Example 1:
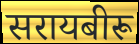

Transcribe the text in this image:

सरायबीरू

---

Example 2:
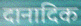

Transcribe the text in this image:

दानादिक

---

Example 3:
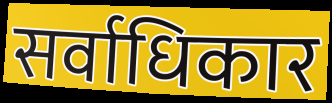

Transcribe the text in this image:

सर्वाधिकार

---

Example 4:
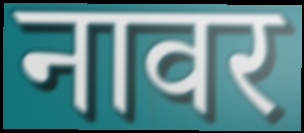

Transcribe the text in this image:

नावर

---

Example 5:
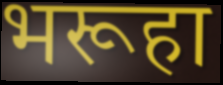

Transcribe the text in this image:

भरूहा